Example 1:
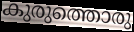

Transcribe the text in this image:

കുരുത്തൊരു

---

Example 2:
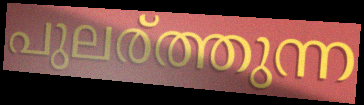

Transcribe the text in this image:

പുലര്ത്തുന്ന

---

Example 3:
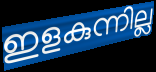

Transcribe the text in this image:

ഇളകുന്നില്ല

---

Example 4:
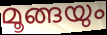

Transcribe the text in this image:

മൂങ്ങയും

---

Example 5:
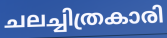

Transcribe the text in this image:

ചലച്ചിത്രകാരി